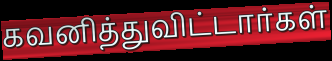
கவனித்துவிட்டார்கள்